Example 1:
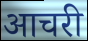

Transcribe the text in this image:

आचरी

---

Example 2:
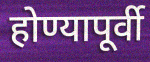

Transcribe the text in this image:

होण्यापूर्वी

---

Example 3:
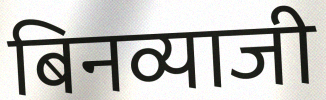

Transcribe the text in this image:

बिनव्याजी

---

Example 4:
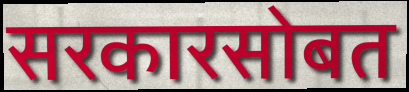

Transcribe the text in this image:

सरकारसोबत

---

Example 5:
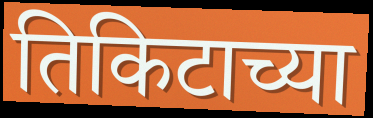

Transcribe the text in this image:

तिकिटाच्या